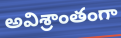
అవిశ్రాంతంగా